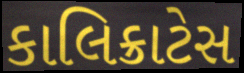
કાલિક્રાટેસ